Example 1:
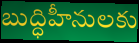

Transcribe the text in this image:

బుద్ధిహీనులకు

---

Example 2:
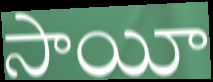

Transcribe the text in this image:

సాయీ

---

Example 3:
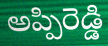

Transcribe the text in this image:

అప్పిరెడ్డి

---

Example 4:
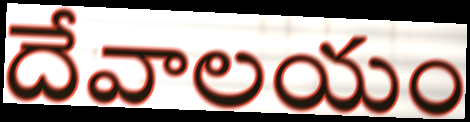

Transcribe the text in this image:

దేవాలయం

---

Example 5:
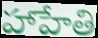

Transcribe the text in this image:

హాహేతి